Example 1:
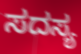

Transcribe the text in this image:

ಸದಸ್ಯ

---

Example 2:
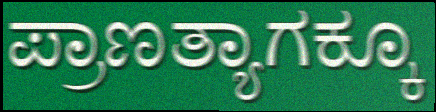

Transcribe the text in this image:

ಪ್ರಾಣತ್ಯಾಗಕ್ಕೂ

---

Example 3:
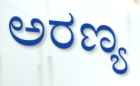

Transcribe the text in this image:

ಅರಣ್ಯ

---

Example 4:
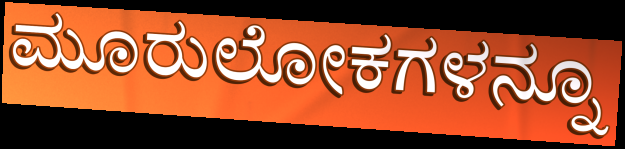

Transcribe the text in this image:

ಮೂರುಲೋಕಗಳನ್ನೂ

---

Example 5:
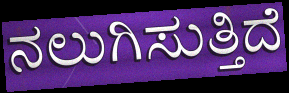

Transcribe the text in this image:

ನಲುಗಿಸುತ್ತಿದೆ